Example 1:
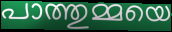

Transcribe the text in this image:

പാത്തുമ്മയെ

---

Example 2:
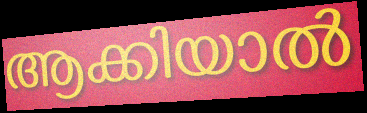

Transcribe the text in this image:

ആക്കിയാൽ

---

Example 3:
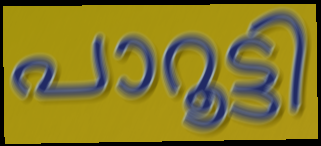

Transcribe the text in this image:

പാറൂട്ടി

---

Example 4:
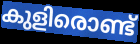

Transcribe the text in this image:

കുളിരൊണ്ട്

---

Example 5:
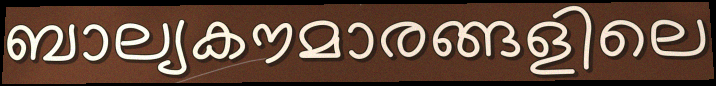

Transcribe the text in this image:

ബാല്യകൗമാരങ്ങളിലെ